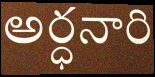
అర్ధనారి